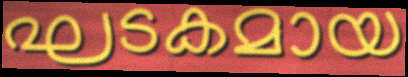
ഘടകമായ